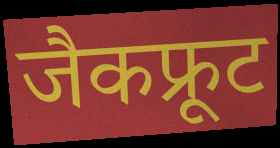
जैकफ्रूट